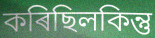
কৰিছিলকিন্তু